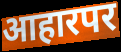
आहारपर